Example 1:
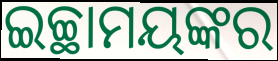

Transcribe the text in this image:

ଇଚ୍ଛାମୟଙ୍କର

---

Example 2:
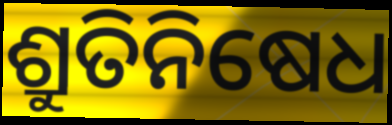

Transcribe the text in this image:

ଶ୍ରୁତିନିଷେଧ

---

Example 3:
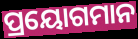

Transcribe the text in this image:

ପ୍ରୟୋଗମାନ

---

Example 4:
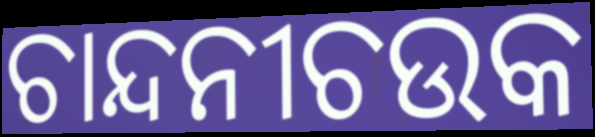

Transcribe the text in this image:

ଚାନ୍ଦନୀଚଉକ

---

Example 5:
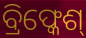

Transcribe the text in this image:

ବ୍ରିଫ୍କେଶ୍